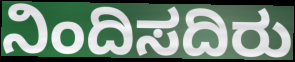
ನಿಂದಿಸದಿರು